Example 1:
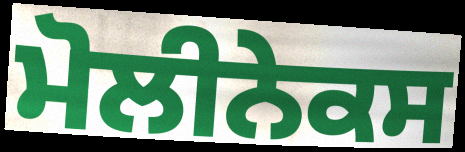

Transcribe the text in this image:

ਮੋਲੀਨੇਕਸ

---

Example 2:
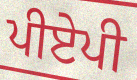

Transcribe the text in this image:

ਪੀਏਪੀ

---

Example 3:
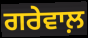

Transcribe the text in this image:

ਗਰੇਵਾਲ਼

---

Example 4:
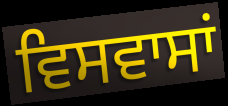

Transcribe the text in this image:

ਵਿਸਵਾਸਾਂ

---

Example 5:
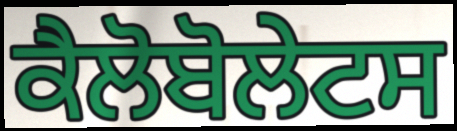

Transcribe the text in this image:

ਕੈਲੋਬੋਲੇਟਸ